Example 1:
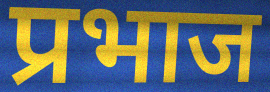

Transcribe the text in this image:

प्रभाज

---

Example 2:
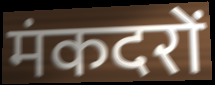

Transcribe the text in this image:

मंकदरों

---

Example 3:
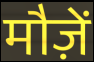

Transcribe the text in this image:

मौज़ें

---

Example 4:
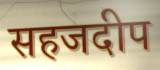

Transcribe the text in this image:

सहजदीप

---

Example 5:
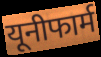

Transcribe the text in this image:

यूनीफार्म